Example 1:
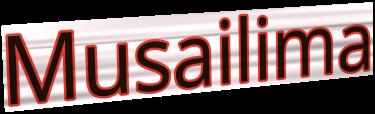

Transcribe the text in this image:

Musailima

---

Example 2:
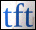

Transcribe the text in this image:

tft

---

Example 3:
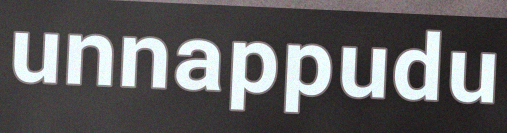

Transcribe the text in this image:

unnappudu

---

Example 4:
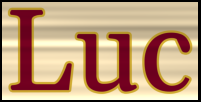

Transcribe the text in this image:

Luc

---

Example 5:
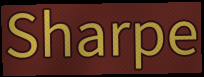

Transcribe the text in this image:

Sharpe